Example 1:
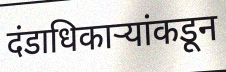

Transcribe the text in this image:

दंडाधिकाऱ्यांकडून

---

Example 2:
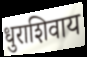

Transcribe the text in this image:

धुराशिवाय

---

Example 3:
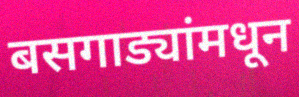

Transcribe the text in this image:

बसगाड्यांमधून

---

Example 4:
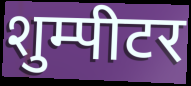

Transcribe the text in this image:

शुम्पीटर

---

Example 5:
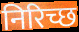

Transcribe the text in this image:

निरिच्छ